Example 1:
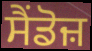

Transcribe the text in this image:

ਸੈਂਡੋਜ਼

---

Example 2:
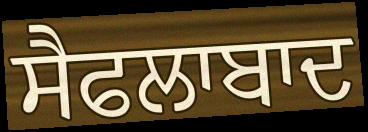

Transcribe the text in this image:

ਸੈਫਲਾਬਾਦ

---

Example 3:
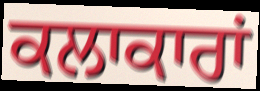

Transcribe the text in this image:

ਕਲਾਕਾਰਾਂ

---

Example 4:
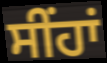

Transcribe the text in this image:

ਸੀਂਹਾਂ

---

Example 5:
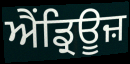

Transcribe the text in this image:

ਐਂਡ੍ਰਿਊਜ਼